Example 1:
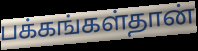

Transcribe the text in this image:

பக்கங்கள்தான்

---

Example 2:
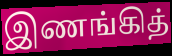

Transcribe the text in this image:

இணங்கித்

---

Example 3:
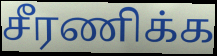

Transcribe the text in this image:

சீரணிக்க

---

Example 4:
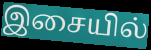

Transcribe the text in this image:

இசையில்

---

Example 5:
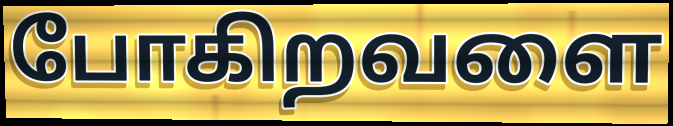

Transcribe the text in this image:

போகிறவளை